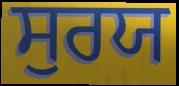
ਸੁਰਯ